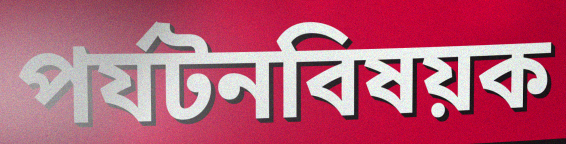
পর্যটনবিষয়ক